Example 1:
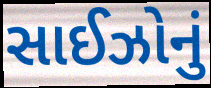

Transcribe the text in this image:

સાઈઝોનું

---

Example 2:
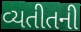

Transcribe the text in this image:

વ્યતીતની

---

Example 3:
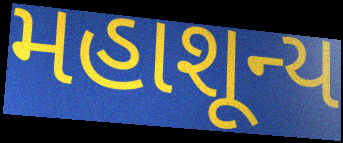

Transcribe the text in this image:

મહાશૂન્ય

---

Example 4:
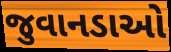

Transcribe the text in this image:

જુવાનડાઓ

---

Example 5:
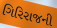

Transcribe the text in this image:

ગિરિરાજની